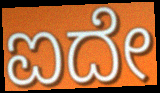
ಐದೇ